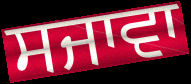
ਸਜਾਵਾ